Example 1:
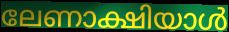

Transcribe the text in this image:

ലേണാക്ഷിയാൾ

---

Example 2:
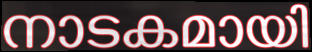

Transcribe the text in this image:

നാടകമായി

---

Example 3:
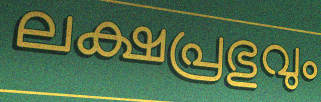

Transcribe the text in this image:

ലക്ഷപ്രഭുവും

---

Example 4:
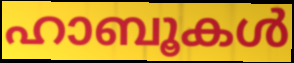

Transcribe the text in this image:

ഹാബൂകൾ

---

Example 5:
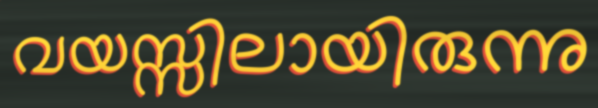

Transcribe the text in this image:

വയസ്സിലായിരുന്നു